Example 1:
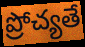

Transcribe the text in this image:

ప్రోచ్యతే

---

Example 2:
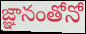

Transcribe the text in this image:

జ్ఞానంతోనో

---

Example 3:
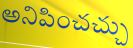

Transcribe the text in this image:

అనిపించచ్చు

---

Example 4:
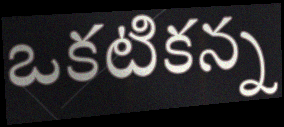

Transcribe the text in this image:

ఒకటికన్న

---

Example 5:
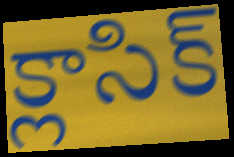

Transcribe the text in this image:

క్లాసిక్